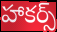
హాకర్స్